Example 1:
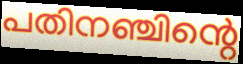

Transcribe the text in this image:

പതിനഞ്ചിന്റെ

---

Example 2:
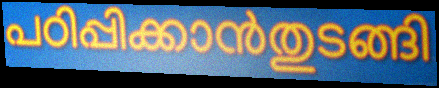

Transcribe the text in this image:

പഠിപ്പിക്കാൻതുടങ്ങി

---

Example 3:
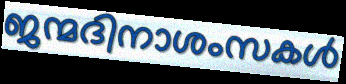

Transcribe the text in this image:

ജന്മദിനാശംസകൾ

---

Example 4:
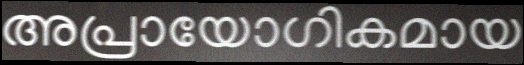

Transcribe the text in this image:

അപ്രായോഗികമായ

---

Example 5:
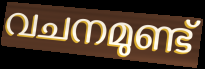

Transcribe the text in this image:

വചനമുണ്ട്